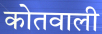
कोतवाली